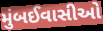
મુંબઈવાસીઓ